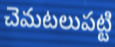
చెమటలుపట్టి